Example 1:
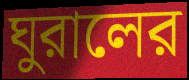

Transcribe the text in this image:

ঘুরালের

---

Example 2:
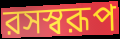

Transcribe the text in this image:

রসস্বরূপ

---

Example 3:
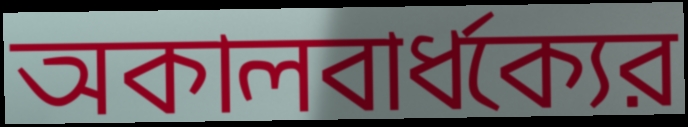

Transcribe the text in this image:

অকালবার্ধক্যের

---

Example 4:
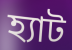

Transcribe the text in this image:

হ্যাট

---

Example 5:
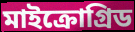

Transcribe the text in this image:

মাইক্রোগ্রিড